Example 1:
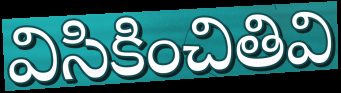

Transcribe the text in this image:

విసికించితివి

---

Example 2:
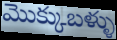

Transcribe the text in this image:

మొక్కుబళ్ళు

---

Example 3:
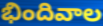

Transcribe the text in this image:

భిందివాల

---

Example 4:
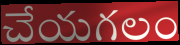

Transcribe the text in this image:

చేయగలం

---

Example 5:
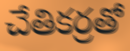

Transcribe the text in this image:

చేతికర్రతో